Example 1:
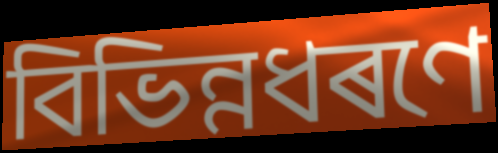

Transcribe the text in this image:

বিভিন্নধৰণে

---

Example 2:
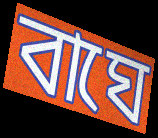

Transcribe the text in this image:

বাঘে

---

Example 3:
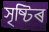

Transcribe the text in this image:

সৃষ্টিৰ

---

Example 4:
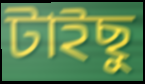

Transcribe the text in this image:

টাইছু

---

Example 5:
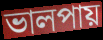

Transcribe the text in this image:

ভালপায়